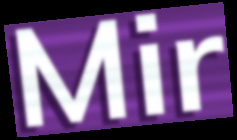
Mir